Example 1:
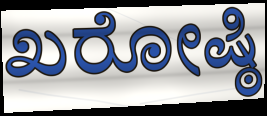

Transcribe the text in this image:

ಖರೋಷ್ಠಿ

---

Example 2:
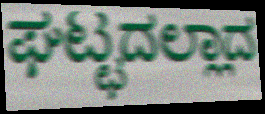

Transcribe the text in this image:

ಘಟ್ಟದಲ್ಲಾದ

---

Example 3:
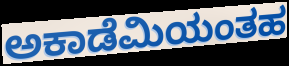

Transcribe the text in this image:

ಅಕಾಡೆಮಿಯಂತಹ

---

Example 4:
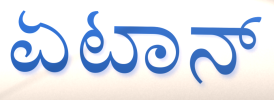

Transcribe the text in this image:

ಏಟಾನ್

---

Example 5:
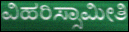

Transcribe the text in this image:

ವಿಹರಿಸ್ಸಾಮೀತಿ